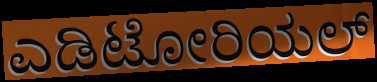
ಎಡಿಟೋರಿಯಲ್